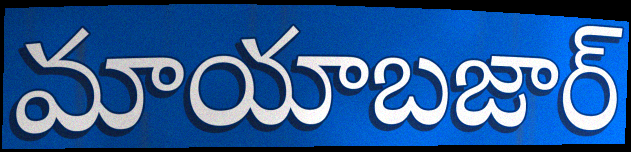
మాయాబజార్